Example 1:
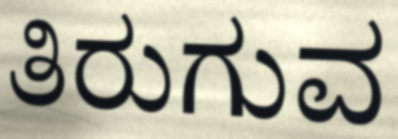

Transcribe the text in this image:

ತಿರುಗುವ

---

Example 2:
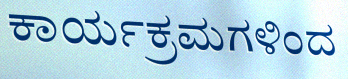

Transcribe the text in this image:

ಕಾರ್ಯಕ್ರಮಗಳಿಂದ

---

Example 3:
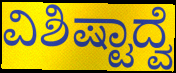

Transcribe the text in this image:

ವಿಶಿಷ್ಟಾದ್ವೆ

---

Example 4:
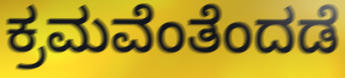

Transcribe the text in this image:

ಕ್ರಮವೆಂತೆಂದಡೆ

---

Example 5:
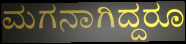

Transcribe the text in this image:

ಮಗನಾಗಿದ್ದರೂ